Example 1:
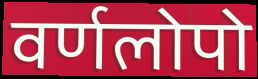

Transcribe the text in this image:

वर्णलोपो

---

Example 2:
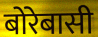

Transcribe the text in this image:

बोरेबासी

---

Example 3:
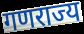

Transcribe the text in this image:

गणराज्य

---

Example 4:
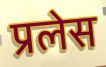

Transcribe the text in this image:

प्रलेस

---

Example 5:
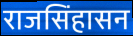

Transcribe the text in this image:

राजसिंहासन